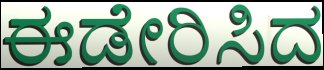
ಈಡೇರಿಸಿದ